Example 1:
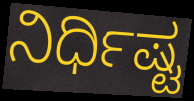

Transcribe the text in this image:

ನಿರ್ಧಿಷ್ಟ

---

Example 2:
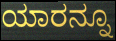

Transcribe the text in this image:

ಯಾರನ್ನೂ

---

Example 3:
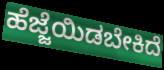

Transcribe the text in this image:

ಹೆಜ್ಜೆಯಿಡಬೇಕಿದೆ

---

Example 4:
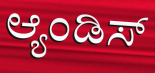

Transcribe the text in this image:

ಆ್ಯಂಡಿಸ್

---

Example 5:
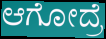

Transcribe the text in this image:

ಆಗೋದ್ರೆ